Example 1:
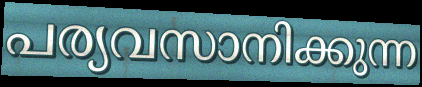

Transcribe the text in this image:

പര്യവസാനിക്കുന്ന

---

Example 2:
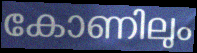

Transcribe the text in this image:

കോണിലും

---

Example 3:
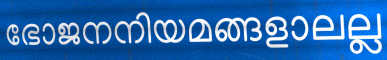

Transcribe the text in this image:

ഭോജനനിയമങ്ങളാലല്ല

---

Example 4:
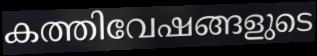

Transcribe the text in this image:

കത്തിവേഷങ്ങളുടെ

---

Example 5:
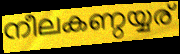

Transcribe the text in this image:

നീലകണ്ഠയ്യര്